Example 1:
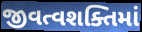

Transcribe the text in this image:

જીવત્વશક્તિમાં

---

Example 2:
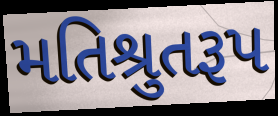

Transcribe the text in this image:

મતિશ્રુતરૂપ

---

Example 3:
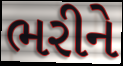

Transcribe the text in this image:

ભરીને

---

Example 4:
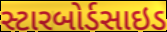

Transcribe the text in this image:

સ્ટારબોર્ડસાઇડ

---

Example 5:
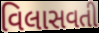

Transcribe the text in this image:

વિલાસવતી